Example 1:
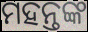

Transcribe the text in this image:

ମହନ୍ତଙ୍କ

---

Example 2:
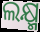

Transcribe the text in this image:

ଲକ୍ଷ୍ମ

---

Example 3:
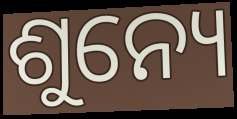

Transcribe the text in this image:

ଶୁନ୍ୟେ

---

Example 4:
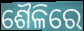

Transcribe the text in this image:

ଶୈଳିରେ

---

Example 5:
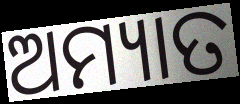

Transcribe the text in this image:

ଅମ୍ୟାତ